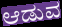
ಆಡುವ